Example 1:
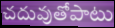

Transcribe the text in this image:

చదువుతోపాటు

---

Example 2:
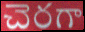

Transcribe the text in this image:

చెరగా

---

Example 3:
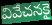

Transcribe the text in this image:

వివేచనకై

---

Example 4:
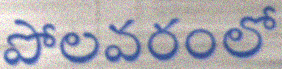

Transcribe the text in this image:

పోలవరంలో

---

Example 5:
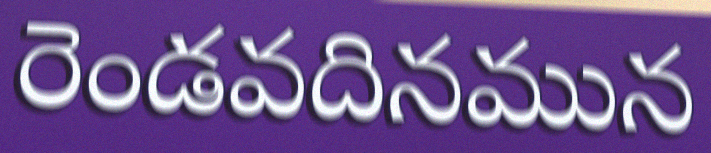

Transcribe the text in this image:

రెండవదినమున